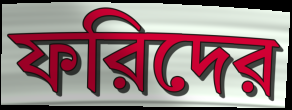
ফরিদের